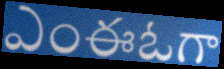
ఎంఈఓగా